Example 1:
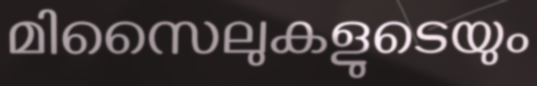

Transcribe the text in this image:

മിസൈലുകളുടെയും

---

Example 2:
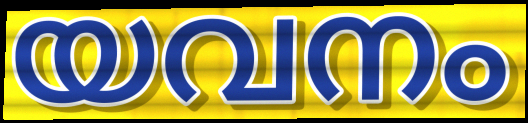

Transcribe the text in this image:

യവനം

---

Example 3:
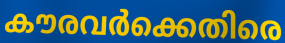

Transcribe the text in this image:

കൗരവർക്കെതിരെ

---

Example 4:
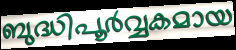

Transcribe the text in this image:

ബുദ്ധിപൂർവ്വകമായ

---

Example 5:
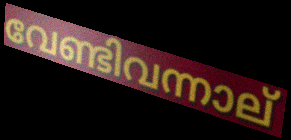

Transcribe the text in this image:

വേണ്ടിവന്നാല്